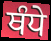
ਥੰਧੇ